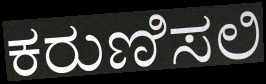
ಕರುಣಿಸಲಿ